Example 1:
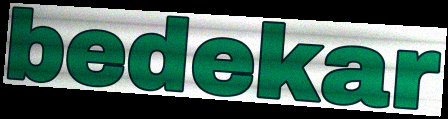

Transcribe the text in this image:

bedekar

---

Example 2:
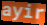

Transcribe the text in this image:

ayir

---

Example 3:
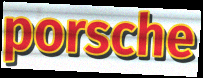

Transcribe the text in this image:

porsche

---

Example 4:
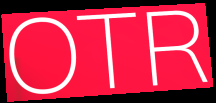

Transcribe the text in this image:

OTR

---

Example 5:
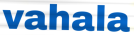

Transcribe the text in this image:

vahala